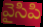
వైసిపి